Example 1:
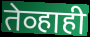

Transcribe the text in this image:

तेव्हाही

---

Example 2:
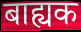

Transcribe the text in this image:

बाह्यक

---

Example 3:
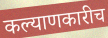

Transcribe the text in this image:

कल्याणकारीच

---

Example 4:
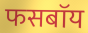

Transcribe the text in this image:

फसबॉय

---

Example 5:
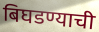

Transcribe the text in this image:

बिघडण्याची